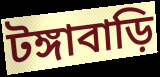
টঙ্গাবাড়ি